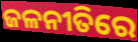
ଜଳନୀତିରେ